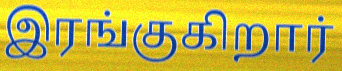
இரங்குகிறார்